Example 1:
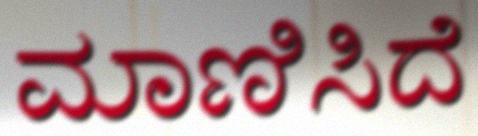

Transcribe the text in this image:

ಮಾಣಿಸಿದೆ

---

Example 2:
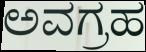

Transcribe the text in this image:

ಅವಗ್ರಹ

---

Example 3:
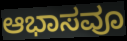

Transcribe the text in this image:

ಆಭಾಸವೂ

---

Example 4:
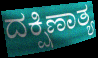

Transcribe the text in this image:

ದಕ್ಷಿಣಾತ್ಯ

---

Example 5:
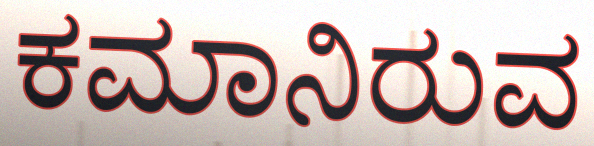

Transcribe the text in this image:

ಕಮಾನಿರುವ